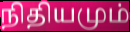
நிதியமும்